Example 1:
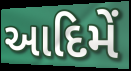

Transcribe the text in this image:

આદિમેં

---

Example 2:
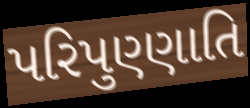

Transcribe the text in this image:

પરિપુણ્ણાતિ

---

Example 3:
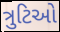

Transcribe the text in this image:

ત્રુટિઓ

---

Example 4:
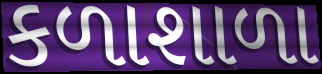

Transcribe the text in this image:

કળાશાળા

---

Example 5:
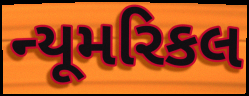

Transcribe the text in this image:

ન્યૂમરિકલ